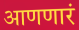
आणणारं